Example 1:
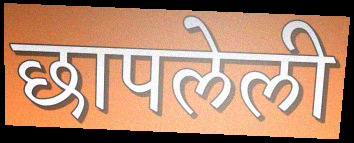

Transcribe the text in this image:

छापलेली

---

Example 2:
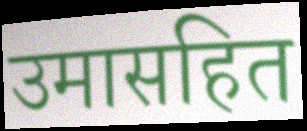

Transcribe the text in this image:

उमासहित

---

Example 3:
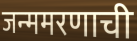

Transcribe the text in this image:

जन्ममरणाची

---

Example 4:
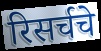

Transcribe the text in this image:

रिसर्चचे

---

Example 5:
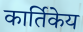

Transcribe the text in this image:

कार्तिकेय